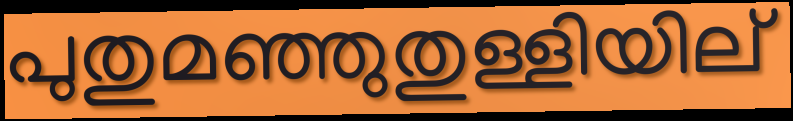
പുതുമഞ്ഞുതുള്ളിയില്